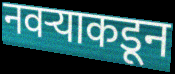
नवऱ्याकडून